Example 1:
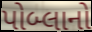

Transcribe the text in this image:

પોબ્લાનો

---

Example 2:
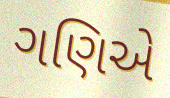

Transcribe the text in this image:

ગણિએ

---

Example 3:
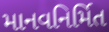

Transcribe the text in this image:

માનવનિર્મિત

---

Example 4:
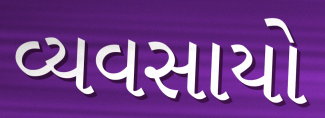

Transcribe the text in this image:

વ્યવસાયો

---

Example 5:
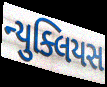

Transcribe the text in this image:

ન્યુક્લિયસ